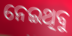
ନେଇଥିବୁ